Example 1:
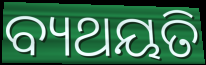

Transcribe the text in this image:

ବ୍ୟଥୟତି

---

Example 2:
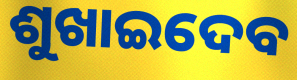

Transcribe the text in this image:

ଶୁଖାଇଦେବ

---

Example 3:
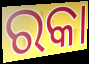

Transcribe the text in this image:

ରକା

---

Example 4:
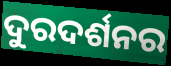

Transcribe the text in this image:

ଦୁରଦର୍ଶନର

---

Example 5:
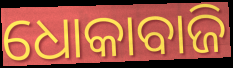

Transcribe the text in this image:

ଧୋକାବାଜି